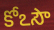
కోఽసౌ